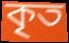
কৃত